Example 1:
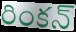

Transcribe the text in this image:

రింకన్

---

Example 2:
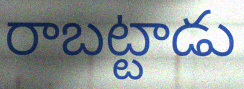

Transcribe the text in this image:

రాబట్టాడు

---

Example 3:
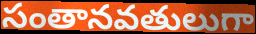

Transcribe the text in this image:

సంతానవతులుగా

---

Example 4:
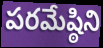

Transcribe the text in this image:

పరమేష్ఠిని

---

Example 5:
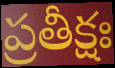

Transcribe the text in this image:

ప్రతీక్షః